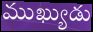
ముఖ్యుడు